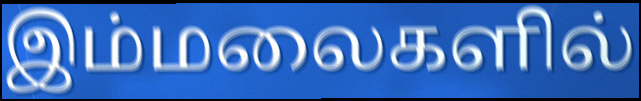
இம்மலைகளில்